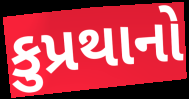
કુપ્રથાનો